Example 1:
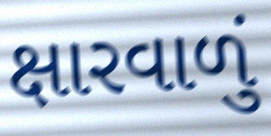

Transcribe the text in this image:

ક્ષારવાળું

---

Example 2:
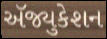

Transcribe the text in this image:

ઍજ્યુકેશન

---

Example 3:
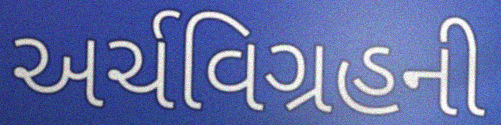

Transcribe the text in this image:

અર્ચવિગ્રહની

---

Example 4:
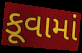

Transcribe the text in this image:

કૂવામાં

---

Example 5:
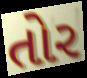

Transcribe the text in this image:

તોર